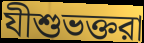
যীশুভক্তরা